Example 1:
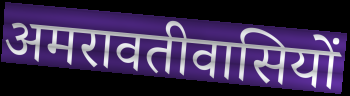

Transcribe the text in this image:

अमरावतीवासियों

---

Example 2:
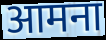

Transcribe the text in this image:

आमना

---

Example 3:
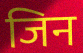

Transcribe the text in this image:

जिन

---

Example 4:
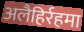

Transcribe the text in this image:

अलैहिर्रहमा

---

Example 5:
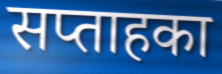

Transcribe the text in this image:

सप्ताहका